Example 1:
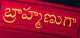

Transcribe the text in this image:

బ్రాహ్మణుగా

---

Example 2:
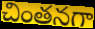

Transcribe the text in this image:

చింతనగా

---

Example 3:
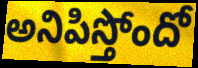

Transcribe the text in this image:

అనిపిస్తోందో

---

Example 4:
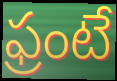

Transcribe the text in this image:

ఫ్రంటే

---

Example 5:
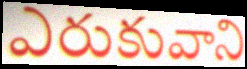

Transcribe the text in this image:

ఎరుకువాని